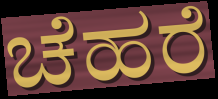
ಚೆಹರೆ